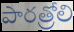
పారత్రోలి